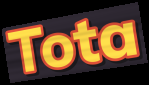
Tota